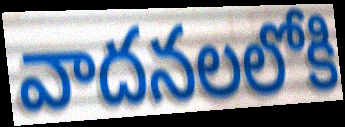
వాదనలలోకి